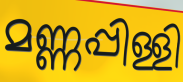
മണ്ണപ്പിള്ളി